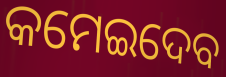
କମେଇଦେବ